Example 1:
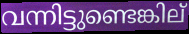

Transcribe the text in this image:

വന്നിട്ടുണ്ടെങ്കില്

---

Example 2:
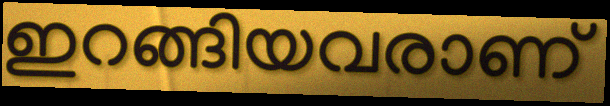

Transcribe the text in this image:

ഇറങ്ങിയവരാണ്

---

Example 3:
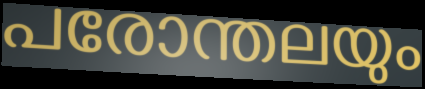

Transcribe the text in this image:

പരോന്തലയും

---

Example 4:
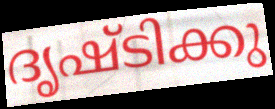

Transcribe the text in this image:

ദൃഷ്ടിക്കു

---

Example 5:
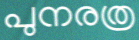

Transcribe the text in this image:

പുനരത്ര